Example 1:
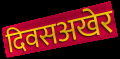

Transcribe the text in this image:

दिवसअखेर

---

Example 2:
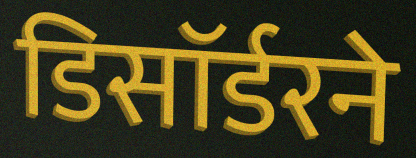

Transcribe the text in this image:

डिसॉर्डरने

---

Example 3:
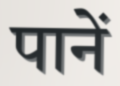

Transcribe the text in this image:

पानें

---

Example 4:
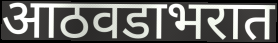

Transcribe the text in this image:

आठवडाभरात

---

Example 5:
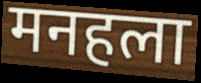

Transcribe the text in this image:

मनहला